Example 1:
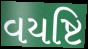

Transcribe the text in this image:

વયષ્ટિ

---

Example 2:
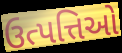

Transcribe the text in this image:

ઉત્પત્તિઓ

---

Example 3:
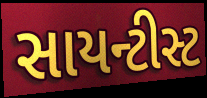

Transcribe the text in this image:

સાયન્ટીસ્ટ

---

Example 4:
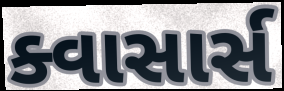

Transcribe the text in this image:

ક્વાસાર્સ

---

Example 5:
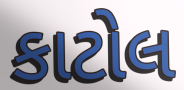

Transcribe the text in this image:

કાટોલ